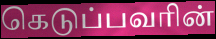
கெடுப்பவரின்